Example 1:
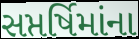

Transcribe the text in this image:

સપ્તર્ષિમાંના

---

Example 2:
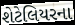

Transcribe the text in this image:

શેટેલિયરના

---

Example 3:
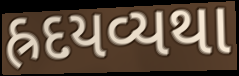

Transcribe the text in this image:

હ્રદયવ્યથા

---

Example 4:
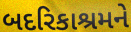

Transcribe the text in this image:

બદરિકાશ્રમને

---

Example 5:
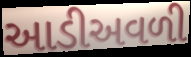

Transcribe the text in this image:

આડીઅવળી